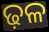
ଢ଼ଳ